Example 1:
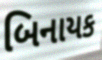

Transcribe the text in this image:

બિનાયક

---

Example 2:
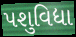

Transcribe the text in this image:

પશુવિદ્યા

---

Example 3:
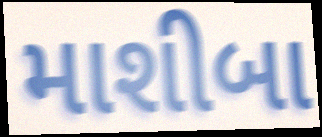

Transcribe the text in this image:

માશીબા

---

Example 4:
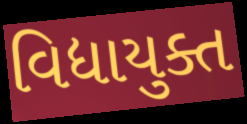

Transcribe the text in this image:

વિદ્યાયુક્ત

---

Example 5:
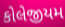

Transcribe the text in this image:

કોલેજીયમ